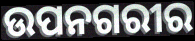
ଉପନଗରୀର